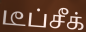
டீப்சீக்